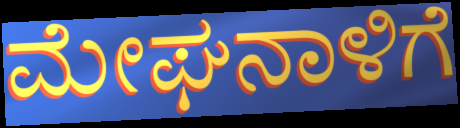
ಮೇಘನಾಳಿಗೆ